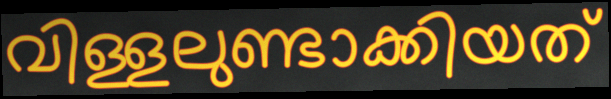
വിള്ളലുണ്ടാക്കിയത്